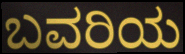
ಬವರಿಯ